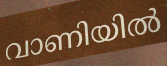
വാണിയിൽ